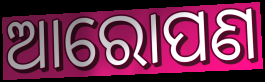
ଆରୋପଣ